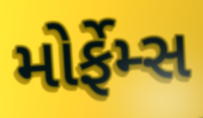
મોર્ફેમ્સ